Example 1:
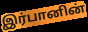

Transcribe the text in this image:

இர்பானின்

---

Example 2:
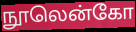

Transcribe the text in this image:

நூலென்கோ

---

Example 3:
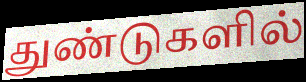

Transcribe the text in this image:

துண்டுகளில்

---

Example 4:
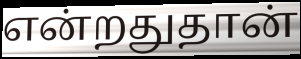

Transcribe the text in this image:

என்றதுதான்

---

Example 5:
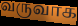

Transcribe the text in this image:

வருவாக